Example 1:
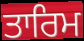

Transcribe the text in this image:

ਤਾਰਿਮ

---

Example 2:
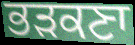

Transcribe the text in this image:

ਭੜਕਣਾ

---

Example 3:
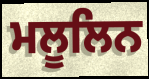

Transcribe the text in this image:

ਮਲੂਲਿਨ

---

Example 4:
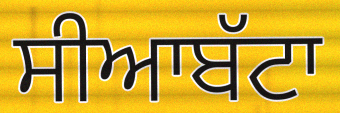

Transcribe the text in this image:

ਸੀਆਬੱਟਾ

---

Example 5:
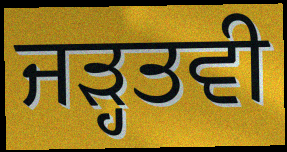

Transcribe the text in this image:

ਜੜ੍ਹਤਵੀ